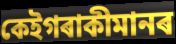
কেইগৰাকীমানৰ